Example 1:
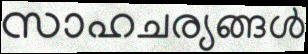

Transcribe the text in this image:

സാഹചര്യങ്ങൾ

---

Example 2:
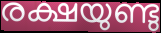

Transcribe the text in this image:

രക്ഷയുണ്ടു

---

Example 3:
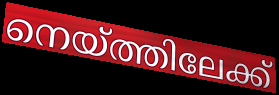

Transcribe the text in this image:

നെയ്ത്തിലേക്ക്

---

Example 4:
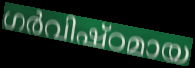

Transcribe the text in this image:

ഗർവിഷ്ഠമായ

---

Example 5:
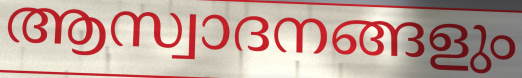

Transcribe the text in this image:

ആസ്വാദനങ്ങളും